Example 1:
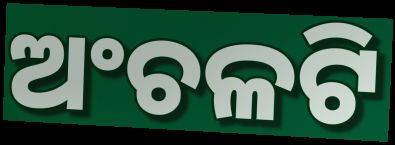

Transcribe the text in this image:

ଅଂଚଳଟି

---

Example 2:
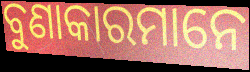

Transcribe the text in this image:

ବୁଣାକାରମାନେ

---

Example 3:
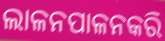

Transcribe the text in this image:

ଲାଳନପାଳନକରି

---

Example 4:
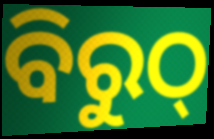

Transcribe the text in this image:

ବିରୁଠ୍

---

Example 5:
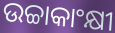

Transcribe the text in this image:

ଉଚ୍ଚାକାଂକ୍ଷୀ